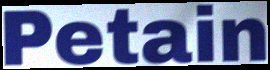
Petain